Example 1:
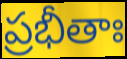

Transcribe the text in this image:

ప్రభీతాః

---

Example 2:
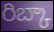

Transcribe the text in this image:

రిబ్కా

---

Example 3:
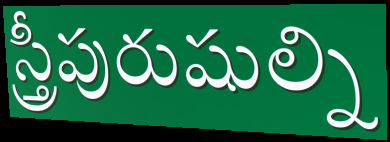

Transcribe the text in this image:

స్త్రీపురుషుల్ని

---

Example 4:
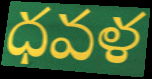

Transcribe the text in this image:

ధవళ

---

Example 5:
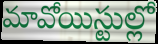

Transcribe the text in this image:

మావోయిస్టుల్లో